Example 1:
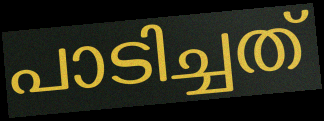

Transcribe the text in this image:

പാടിച്ചത്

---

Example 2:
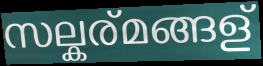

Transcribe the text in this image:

സല്കര്മങ്ങള്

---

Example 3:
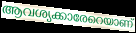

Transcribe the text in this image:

ആവശ്യക്കാരേറെയാണ്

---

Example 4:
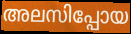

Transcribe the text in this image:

അലസിപ്പോയ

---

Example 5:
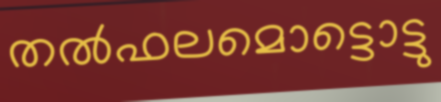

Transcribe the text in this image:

തൽഫലമൊട്ടൊട്ടു